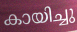
കായിച്ചു